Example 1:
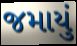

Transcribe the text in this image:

જમાયું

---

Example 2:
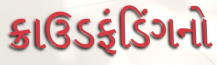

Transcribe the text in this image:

ક્રાઉડફંડિંગનો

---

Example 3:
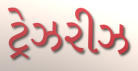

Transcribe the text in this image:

ટ્રેઝરીઝ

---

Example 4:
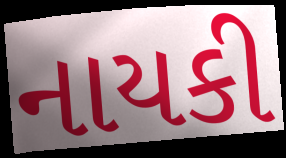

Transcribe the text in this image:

નાયકી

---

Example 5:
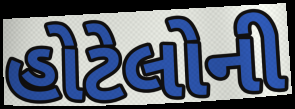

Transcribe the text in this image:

હોટેલોની